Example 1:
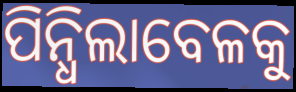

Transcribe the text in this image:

ପିନ୍ଧିଲାବେଳକୁ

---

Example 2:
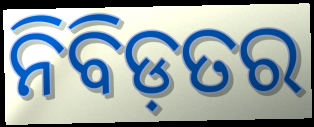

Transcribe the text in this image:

ନିବିଡ଼ତର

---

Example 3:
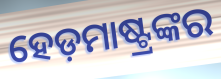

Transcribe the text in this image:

ହେଡ଼ମାଷ୍ଟ୍ରଙ୍କର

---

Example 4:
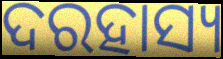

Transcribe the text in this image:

ଦରହାସ୍ୟ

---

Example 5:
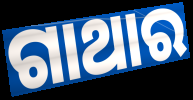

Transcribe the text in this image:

ଗାଥାର